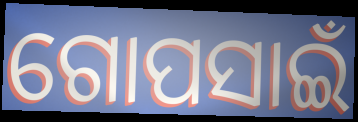
ଗୋପସାଇଁ